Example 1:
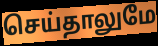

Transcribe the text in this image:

செய்தாலுமே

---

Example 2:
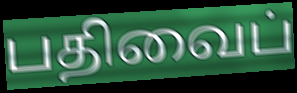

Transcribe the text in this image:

பதிவைப்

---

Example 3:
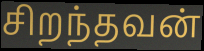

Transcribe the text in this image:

சிறந்தவன்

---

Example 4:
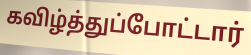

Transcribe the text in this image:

கவிழ்த்துப்போட்டார்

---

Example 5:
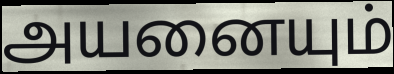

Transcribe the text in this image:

அயனையும்